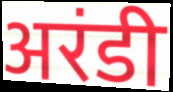
अरंडी